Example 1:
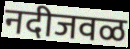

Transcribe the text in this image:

नदीजवळ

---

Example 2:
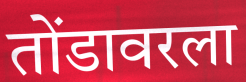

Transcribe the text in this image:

तोंडावरला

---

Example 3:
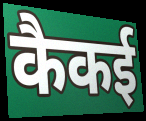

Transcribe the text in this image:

कैकई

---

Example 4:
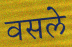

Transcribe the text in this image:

वसले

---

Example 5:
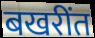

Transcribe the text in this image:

बखरींत